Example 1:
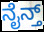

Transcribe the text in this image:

ನೈನ್ತ್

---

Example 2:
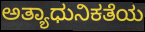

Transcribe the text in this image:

ಅತ್ಯಾಧುನಿಕತೆಯ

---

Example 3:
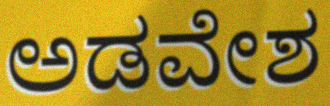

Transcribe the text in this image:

ಅಡವೇಶ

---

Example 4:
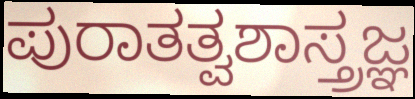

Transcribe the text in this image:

ಪುರಾತತ್ವಶಾಸ್ತ್ರಜ್ಞ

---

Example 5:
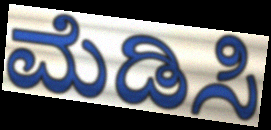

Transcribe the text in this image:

ಮೆಡಿಸಿ